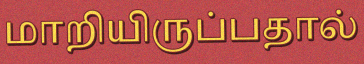
மாறியிருப்பதால்